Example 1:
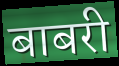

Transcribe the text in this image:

बाबरी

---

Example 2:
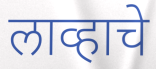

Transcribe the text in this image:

लाव्हाचे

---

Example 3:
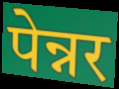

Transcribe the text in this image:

पेन्नर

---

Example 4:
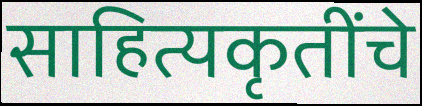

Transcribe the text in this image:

साहित्यकृतींचे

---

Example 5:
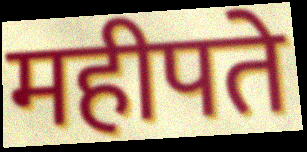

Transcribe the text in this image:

महीपते